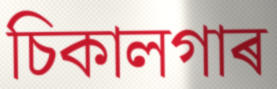
চিকালগাৰ